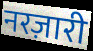
नरज़ारी